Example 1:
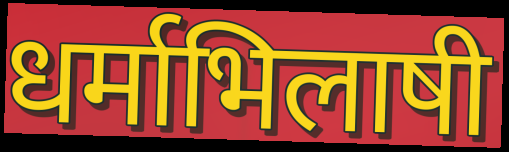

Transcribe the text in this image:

धर्माभिलाषी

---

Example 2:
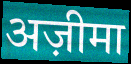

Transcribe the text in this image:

अज़ीमा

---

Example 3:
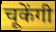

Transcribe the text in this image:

चूकेंगी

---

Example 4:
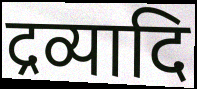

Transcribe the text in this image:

द्रव्यादि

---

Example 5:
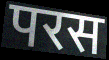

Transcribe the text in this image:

परस